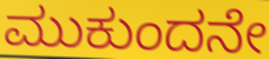
ಮುಕುಂದನೇ